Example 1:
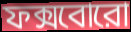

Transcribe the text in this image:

ফক্সবোরো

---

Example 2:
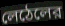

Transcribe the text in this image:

লেঠেলের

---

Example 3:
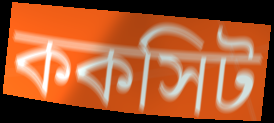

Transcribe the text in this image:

ককসিট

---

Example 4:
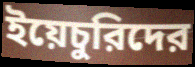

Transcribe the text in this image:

ইয়েচুরিদের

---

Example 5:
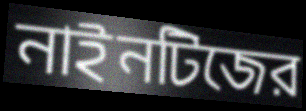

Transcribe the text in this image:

নাইনটিজের